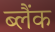
ब्लैंक